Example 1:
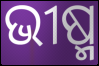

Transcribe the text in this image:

ଭୀଷ୍ମ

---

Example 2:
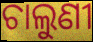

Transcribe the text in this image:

ଚାଲୁଣୀ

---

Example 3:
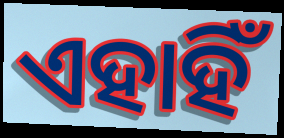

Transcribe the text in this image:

ଏହାହିଁ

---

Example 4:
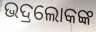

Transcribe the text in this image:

ଭଦ୍ରଲୋକଙ୍କ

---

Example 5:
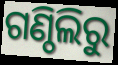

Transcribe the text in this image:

ଗଣ୍ଠିଲିରୁ